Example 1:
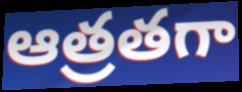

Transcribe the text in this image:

ఆత్రతగా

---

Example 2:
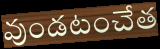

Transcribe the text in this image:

వుండటంచేత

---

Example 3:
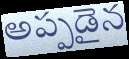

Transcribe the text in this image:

అప్పడైన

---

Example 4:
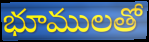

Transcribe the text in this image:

భూములతో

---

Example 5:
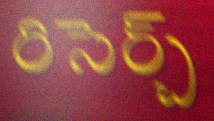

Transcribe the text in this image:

రిసెర్చ్